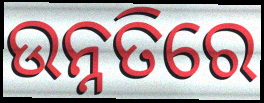
ଉନ୍ନତିରେ